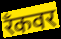
रँकवर